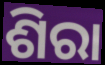
ଶିରା